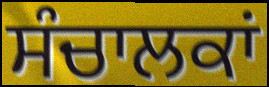
ਸੰਚਾਲਕਾਂ